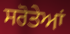
ਸਰੋਤੇਆਂ